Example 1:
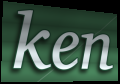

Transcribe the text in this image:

ken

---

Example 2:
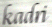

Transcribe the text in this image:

kadri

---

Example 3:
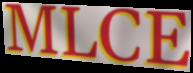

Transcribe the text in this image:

MLCE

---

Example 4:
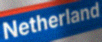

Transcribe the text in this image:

Netherland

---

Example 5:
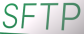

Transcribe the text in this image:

SFTP